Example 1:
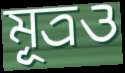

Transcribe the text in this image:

মূত্রও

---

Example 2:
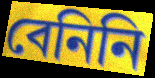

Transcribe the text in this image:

বেনিনি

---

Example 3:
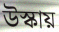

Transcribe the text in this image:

উস্কায়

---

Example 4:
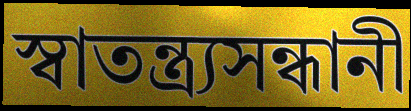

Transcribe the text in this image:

স্বাতন্ত্র্যসন্ধানী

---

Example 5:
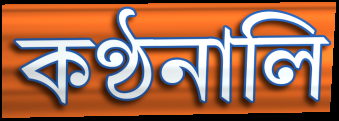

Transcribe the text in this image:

কণ্ঠনালি